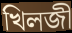
খিলজী